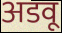
अडवू